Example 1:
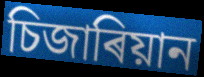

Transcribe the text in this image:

চিজাৰিয়ান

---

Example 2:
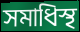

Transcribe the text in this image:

সমাধিস্থ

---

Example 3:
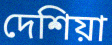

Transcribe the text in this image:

দেশিয়া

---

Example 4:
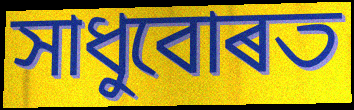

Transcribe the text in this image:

সাধুবোৰত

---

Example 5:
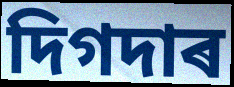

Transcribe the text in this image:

দিগদাৰ